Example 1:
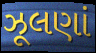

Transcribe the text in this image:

ઝૂલણાં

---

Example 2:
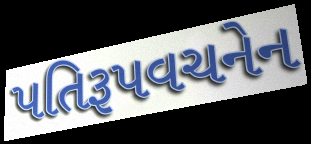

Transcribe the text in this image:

પતિરૂપવચનેન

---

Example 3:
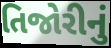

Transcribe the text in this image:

તિજોરીનું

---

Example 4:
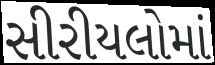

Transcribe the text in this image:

સીરીયલોમાં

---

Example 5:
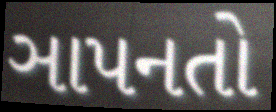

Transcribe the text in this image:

ઞાપનતો